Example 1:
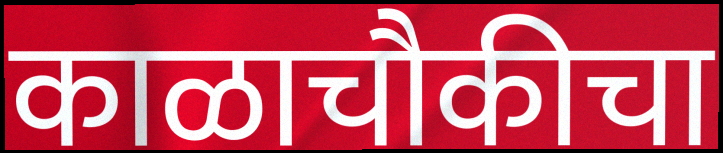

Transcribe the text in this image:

काळाचौकीचा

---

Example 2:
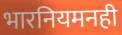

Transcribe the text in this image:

भारनियमनही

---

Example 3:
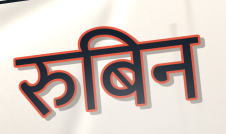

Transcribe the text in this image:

रुबिन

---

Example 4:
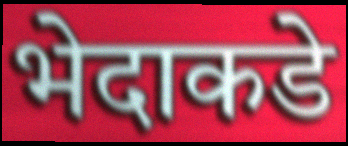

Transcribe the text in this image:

भेदाकडे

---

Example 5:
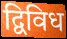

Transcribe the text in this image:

द्विविध